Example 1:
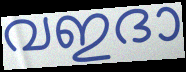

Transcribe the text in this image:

വഇദാ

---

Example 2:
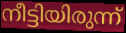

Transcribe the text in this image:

നീട്ടിയിരുന്ന്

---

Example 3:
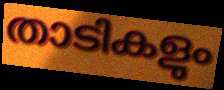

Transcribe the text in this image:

താടികളും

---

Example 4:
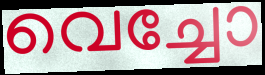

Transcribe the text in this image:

വെച്ചോ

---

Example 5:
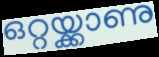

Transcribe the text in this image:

ഒറ്റയ്ക്കാണു